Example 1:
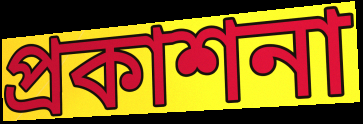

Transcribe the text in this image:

প্রকাশনা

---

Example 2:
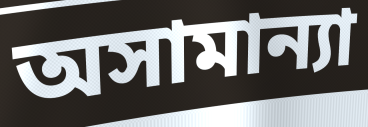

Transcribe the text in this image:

অসামান্যা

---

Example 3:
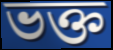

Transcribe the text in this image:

ভক্ত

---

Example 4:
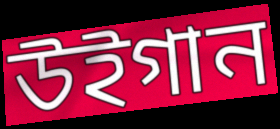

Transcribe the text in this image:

উইগান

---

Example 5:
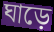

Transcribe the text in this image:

ঘাড়ে